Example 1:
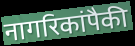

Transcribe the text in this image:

नागरिकांपैकी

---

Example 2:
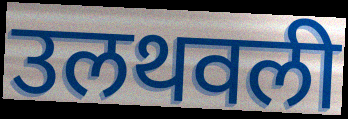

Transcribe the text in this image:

उलथवली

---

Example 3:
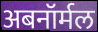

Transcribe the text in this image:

अबनॉर्मल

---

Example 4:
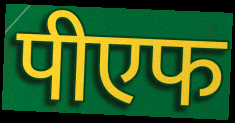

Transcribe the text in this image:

पीएफ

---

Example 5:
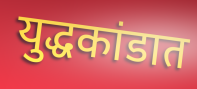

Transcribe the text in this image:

युद्धकांडात